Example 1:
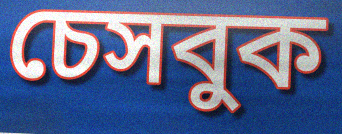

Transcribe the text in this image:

চেসবুক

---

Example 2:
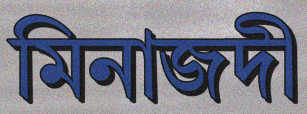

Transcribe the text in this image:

মিনাজদী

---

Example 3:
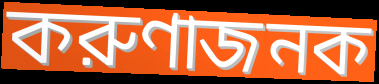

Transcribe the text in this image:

করুণাজনক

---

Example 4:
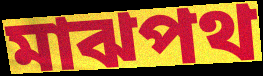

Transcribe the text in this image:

মাঝপথ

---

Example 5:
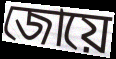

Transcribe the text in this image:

জোয়ে